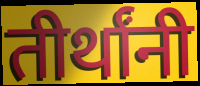
तीर्थांनी